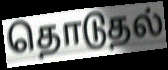
தொடுதல்